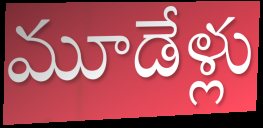
మూడేళ్లు